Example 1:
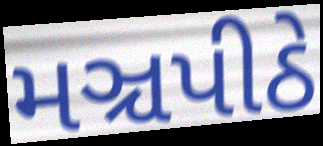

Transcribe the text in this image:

મઞ્ચપીઠે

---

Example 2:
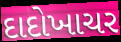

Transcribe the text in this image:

દાદોખાચર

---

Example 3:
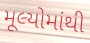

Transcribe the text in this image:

મૂલ્યોમાંથી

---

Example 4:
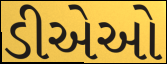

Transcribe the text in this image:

ડીએઓ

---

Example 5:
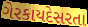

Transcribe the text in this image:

ગેરકાયદેસરતા